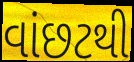
વાંછટથી